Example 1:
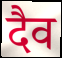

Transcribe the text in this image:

दैव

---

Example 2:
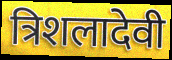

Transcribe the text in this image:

त्रिशलादेवी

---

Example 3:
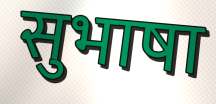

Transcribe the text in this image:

सुभाषा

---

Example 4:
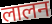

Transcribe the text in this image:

लालन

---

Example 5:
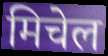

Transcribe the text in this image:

मिचेल